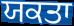
ਯਕਤਾ